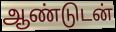
ஆண்டுடன்